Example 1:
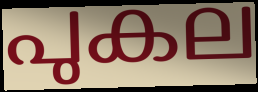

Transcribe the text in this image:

പുകല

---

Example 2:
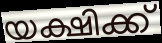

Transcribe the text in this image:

യക്ഷിക്ക്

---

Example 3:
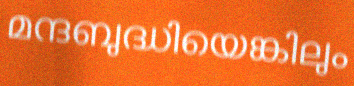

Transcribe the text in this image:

മന്ദബുദ്ധിയെങ്കിലും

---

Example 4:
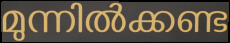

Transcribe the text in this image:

മുന്നിൽക്കണ്ട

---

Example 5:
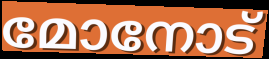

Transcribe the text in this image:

മോനോട്